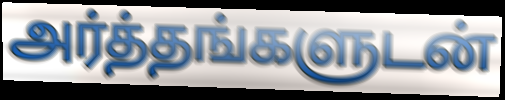
அர்த்தங்களுடன்